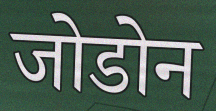
जोडोन